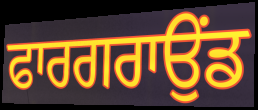
ਫਾਰਗਰਾਉਂਡ